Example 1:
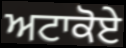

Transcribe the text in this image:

ਅਟਾਕੋਏ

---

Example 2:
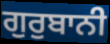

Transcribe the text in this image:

ਗੁਰੁਬਾਨੀ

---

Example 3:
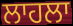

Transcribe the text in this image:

ਲਾਹਲਾ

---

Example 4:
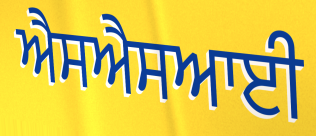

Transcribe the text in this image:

ਐਸਐਸਆਈ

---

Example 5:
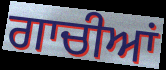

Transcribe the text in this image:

ਗਾਚੀਆਂ